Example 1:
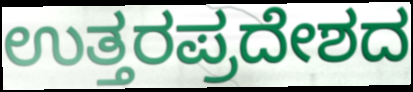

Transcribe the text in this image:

ಉತ್ತರಪ್ರದೇಶದ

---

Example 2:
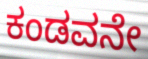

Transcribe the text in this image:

ಕಂಡವನೇ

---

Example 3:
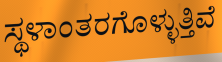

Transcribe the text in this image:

ಸ್ಥಳಾಂತರಗೊಳ್ಳುತ್ತಿವೆ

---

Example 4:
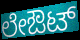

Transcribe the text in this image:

ಲೇಔಟ್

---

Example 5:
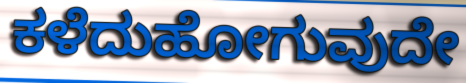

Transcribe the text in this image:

ಕಳೆದುಹೋಗುವುದೇ